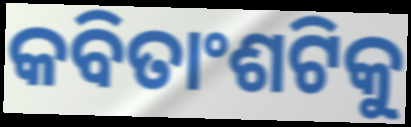
କବିତାଂଶଟିକୁ